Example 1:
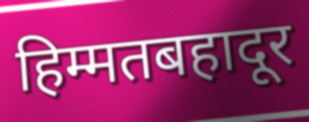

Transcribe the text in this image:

हिम्मतबहादूर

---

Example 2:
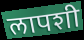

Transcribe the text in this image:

लापशी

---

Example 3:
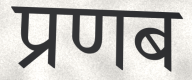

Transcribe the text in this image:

प्रणब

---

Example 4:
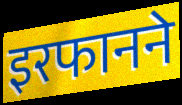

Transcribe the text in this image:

इरफानने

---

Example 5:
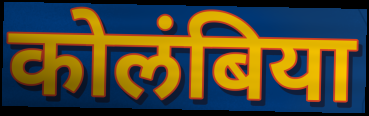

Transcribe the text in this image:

कोलंबिया